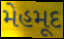
મેહમૂદ